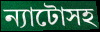
ন্যাটোসহ